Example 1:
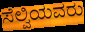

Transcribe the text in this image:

ಸೆಲ್ವಿಯವರು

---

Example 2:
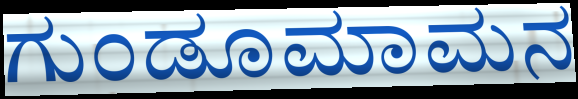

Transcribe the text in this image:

ಗುಂಡೂಮಾಮನ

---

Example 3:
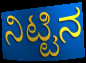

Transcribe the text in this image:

ನಿಟ್ಟಿನ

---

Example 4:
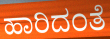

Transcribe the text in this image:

ಹಾರಿದಂತೆ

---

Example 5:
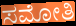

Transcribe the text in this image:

ಸಮೋತಿ